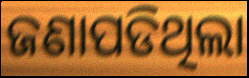
ଜଣାପଡିଥିଲା